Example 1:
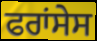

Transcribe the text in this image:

ਫਰਾਂਸੇਸ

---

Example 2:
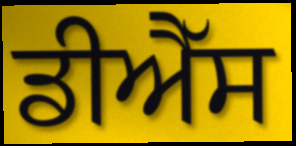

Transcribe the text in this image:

ਡੀਐੱਸ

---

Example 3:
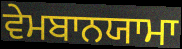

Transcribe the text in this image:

ਵੇਮਬਾਨਯਾਮਾ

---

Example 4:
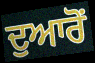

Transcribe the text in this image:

ਦੁਆਰੋਂ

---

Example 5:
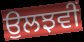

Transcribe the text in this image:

ਉਲਝਵੀਂ